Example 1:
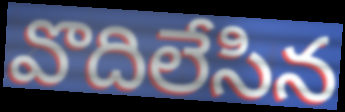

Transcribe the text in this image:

వొదిలేసిన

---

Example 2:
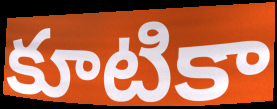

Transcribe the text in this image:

కూటికా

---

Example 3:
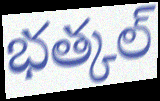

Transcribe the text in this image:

భత్కల్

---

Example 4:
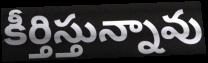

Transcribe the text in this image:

కీర్తిస్తున్నావు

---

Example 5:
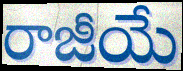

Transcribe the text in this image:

రాజీయే